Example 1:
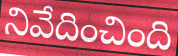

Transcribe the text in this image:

నివేదించింది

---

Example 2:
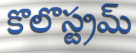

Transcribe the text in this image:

కొలొస్ట్రమ్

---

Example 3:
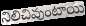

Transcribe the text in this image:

నిలిచివుంటాయి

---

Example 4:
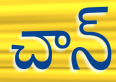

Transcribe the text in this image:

చాన్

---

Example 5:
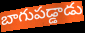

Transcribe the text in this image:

బాగుపడ్డాడు